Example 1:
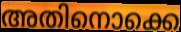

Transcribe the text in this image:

അതിനൊക്കെ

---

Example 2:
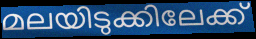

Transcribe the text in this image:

മലയിടുക്കിലേക്ക്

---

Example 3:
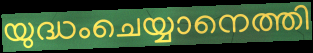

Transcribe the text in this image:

യുദ്ധംചെയ്യാനെത്തി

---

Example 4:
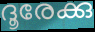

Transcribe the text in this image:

ദൂരേക്കു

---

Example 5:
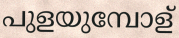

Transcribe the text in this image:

പുളയുമ്പോള്